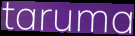
taruma